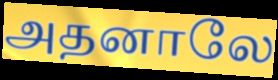
அதனாலே